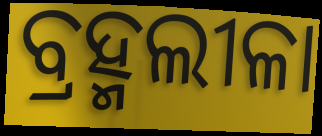
ବ୍ରହ୍ମଲୀଳା